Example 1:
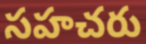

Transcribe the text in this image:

సహచరు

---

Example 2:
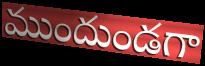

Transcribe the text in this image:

ముందుండగా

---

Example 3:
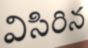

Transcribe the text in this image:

విసిరిన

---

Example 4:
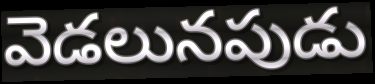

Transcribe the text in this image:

వెడలునపుడు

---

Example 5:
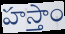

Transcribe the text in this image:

హస్తాం